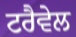
ਟਰੈਵੇਲ